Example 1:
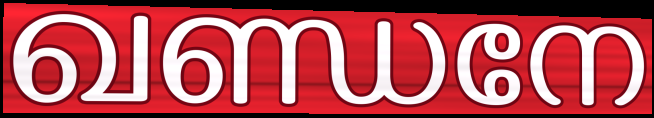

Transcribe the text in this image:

ഖണ്ഡനേ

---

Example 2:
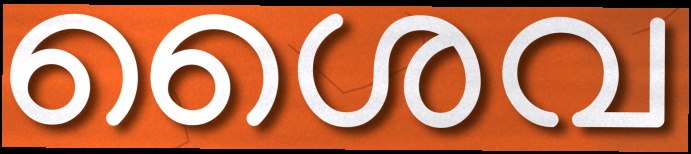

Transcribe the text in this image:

ശൈവ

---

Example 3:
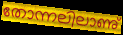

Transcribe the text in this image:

തോന്നലിലാണു്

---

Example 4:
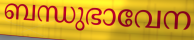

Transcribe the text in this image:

ബന്ധുഭാവേന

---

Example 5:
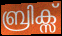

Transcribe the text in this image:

ബ്രിക്സ്